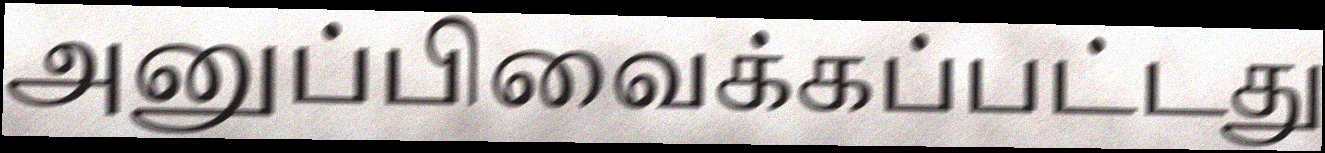
அனுப்பிவைக்கப்பட்டது